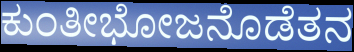
ಕುಂತೀಭೋಜನೊಡೆತನ